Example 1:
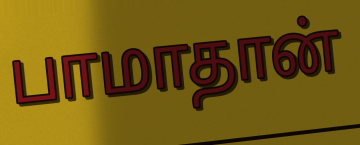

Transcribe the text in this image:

பாமாதான்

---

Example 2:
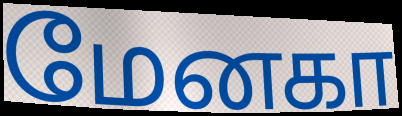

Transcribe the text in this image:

மேனகா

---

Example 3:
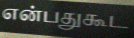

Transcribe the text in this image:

என்பதுகூட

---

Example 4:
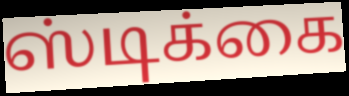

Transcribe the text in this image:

ஸ்டிக்கை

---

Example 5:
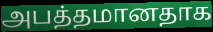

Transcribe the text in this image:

அபத்தமானதாக